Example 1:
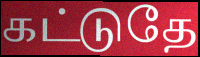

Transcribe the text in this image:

கட்டுதே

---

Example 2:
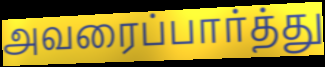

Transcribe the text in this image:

அவரைப்பார்த்து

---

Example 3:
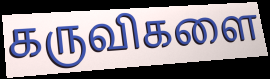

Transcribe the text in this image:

கருவிகளை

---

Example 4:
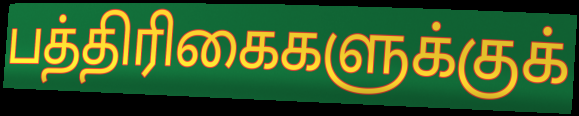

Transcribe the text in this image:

பத்திரிகைகளுக்குக்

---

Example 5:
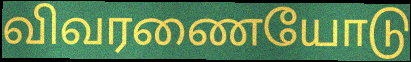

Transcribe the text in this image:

விவரணையோடு